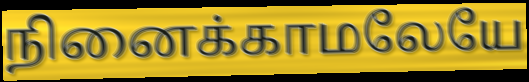
நினைக்காமலேயே